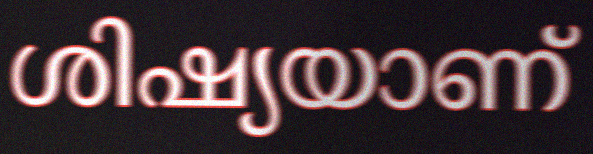
ശിഷ്യയാണ്